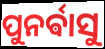
ପୁନର୍ଵାସୁ